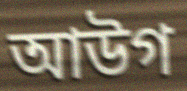
আউগ